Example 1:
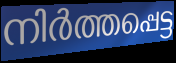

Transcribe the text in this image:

നിർത്തപ്പെട്ട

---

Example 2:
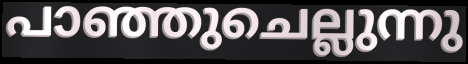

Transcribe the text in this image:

പാഞ്ഞുചെല്ലുന്നു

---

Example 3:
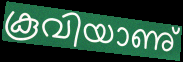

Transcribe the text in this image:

കൂവിയാണു്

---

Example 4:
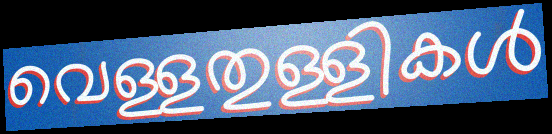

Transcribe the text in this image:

വെള്ളതുള്ളികൾ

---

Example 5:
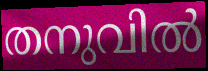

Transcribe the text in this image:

തനുവിൽ